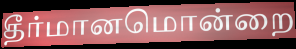
தீர்மானமொன்றை